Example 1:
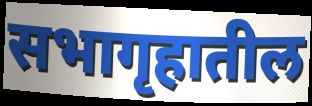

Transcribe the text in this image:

सभागृहातील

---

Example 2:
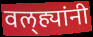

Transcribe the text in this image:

वल्ह्यांनी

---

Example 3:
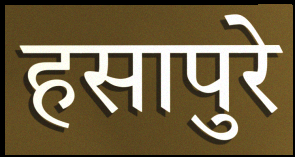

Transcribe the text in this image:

हसापुरे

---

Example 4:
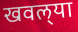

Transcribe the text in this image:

खवल्या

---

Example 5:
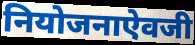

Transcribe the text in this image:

नियोजनाऐवजी